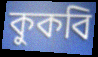
কুকবি